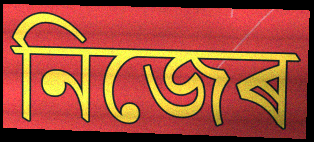
নিজেৰ